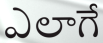
ఎలాగే